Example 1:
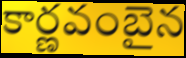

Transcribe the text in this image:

కార్ణవంబైన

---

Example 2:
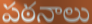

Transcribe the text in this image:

పఠనాలు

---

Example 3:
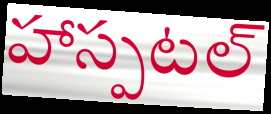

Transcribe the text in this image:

హాస్పటల్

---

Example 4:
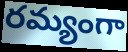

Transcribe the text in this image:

రమ్యంగా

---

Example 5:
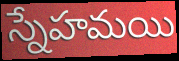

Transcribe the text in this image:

స్నేహమయి